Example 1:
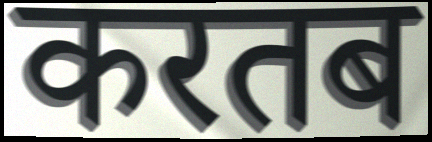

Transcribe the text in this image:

करतब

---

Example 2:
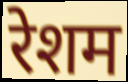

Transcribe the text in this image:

रेशम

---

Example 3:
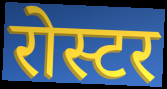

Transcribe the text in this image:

रोस्टर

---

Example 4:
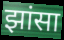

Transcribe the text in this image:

झांसा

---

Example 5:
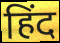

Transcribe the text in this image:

हिंद